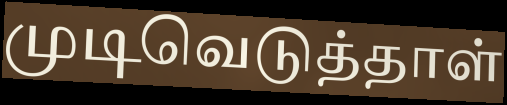
முடிவெடுத்தாள்